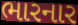
ભારનાર